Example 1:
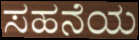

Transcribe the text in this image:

ಸಹನೆಯ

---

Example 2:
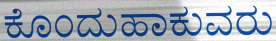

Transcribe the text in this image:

ಕೊಂದುಹಾಕುವರು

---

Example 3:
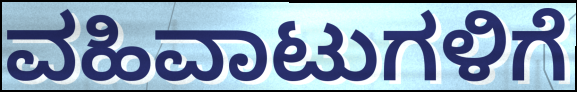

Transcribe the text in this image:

ವಹಿವಾಟುಗಳಿಗೆ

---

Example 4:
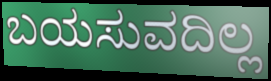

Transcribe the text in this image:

ಬಯಸುವದಿಲ್ಲ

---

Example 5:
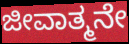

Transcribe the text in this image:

ಜೀವಾತ್ಮನೇ